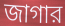
জাগার